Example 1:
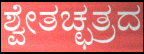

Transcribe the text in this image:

ಶ್ವೇತಚ್ಛತ್ರದ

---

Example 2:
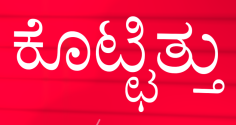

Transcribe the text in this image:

ಕೊಟ್ಟಿತ್ತು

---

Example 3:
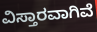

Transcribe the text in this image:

ವಿಸ್ತಾರವಾಗಿವೆ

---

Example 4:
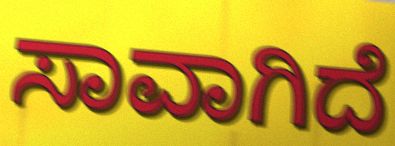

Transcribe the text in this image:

ಸಾವಾಗಿದೆ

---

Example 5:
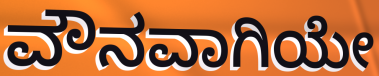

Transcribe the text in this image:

ವೌನವಾಗಿಯೇ